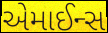
એમાઈન્સ